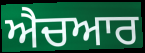
ਐਚਆਰ